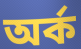
অর্ক